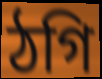
ঠগি